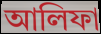
আলিফা